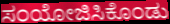
ಸಂಯೋಜಿಸಿಕೊಂಡು